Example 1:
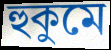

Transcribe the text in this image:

হুকুমে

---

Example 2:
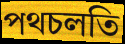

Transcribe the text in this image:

পথচলতি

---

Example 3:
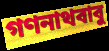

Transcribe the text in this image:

গণনাথবাবু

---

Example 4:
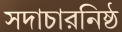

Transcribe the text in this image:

সদাচারনিষ্ঠ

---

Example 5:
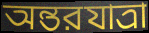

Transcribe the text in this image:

অন্তরযাত্রা